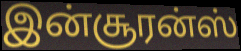
இன்சூரன்ஸ்